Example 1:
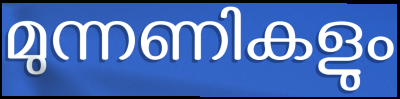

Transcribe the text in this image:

മുന്നണികളും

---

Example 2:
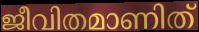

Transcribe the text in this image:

ജീവിതമാണിത്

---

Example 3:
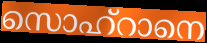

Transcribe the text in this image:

സൊഹ്റാനെ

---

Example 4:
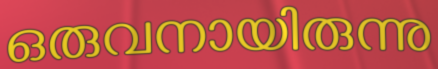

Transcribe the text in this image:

ഒരുവനായിരുന്നു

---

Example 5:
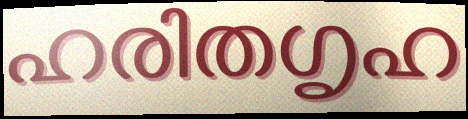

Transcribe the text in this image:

ഹരിതഗൃഹ